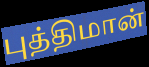
புத்திமான்